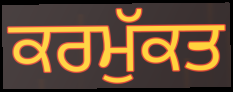
ਕਰਮੁੱਕਤ